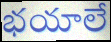
భయాలే